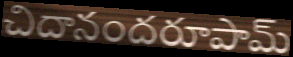
చిదానందరూపామ్